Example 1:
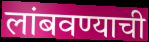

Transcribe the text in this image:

लांबवण्याची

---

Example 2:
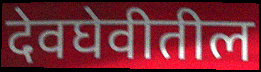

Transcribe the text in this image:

देवघेवीतील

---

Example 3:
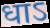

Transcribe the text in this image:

धाऽ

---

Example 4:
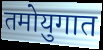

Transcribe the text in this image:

तमोयुगात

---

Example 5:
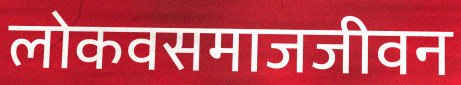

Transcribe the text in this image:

लोकवसमाजजीवन